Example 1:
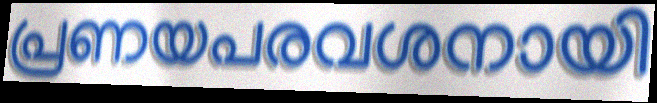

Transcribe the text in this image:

പ്രണയപരവശനായി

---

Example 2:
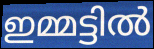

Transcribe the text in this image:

ഇമ്മട്ടിൽ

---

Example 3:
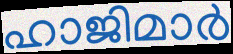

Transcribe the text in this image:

ഹാജിമാർ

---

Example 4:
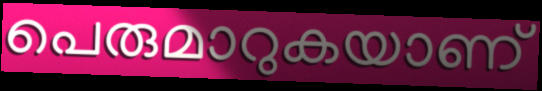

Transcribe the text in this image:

പെരുമാറുകയാണ്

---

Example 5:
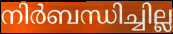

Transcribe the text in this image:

നിർബന്ധിച്ചില്ല